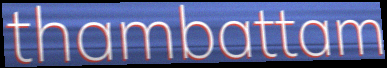
thambattam